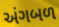
અંગબળ